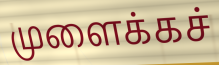
முளைக்கச்